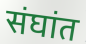
संघांत